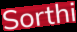
Sorthi